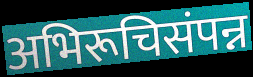
अभिरूचिसंपन्न